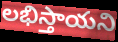
లభిస్తాయని